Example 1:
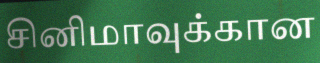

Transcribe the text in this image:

சினிமாவுக்கான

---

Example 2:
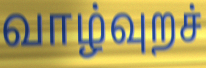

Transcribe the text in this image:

வாழ்வுறச்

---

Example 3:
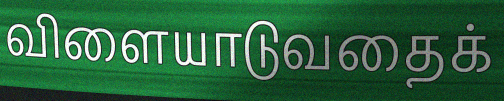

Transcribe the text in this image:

விளையாடுவதைக்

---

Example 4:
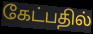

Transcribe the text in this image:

கேட்பதில்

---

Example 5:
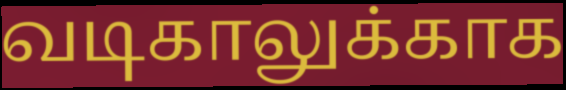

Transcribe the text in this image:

வடிகாலுக்காக